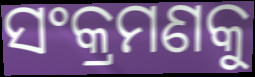
ସଂକ୍ରମଣକୁ